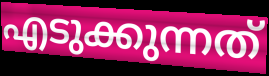
എടുക്കുന്നത്